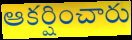
ఆకర్షించారు